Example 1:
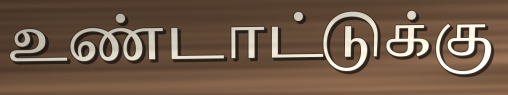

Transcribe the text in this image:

உண்டாட்டுக்கு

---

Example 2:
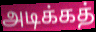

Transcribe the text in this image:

அடிக்கத்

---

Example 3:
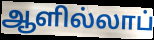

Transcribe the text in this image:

ஆளில்லாப்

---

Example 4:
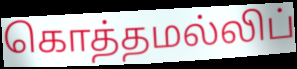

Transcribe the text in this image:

கொத்தமல்லிப்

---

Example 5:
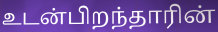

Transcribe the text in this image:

உடன்பிறந்தாரின்